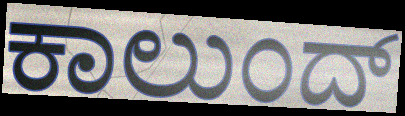
ಕಾಲುಂದ್